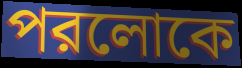
পরলোকে